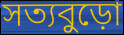
সত্যবুড়ো